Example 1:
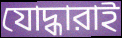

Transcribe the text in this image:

যোদ্ধারাই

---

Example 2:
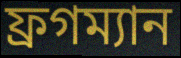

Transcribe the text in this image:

ফ্রগম্যান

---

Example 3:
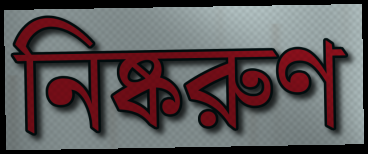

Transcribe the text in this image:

নিষ্করুণ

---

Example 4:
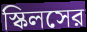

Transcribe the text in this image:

স্কিলসের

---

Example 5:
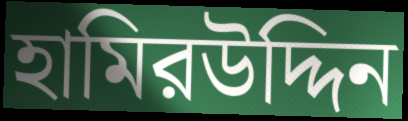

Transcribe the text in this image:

হামিরউদ্দিন